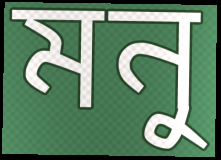
মনু